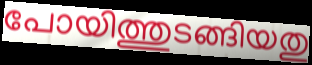
പോയിത്തുടങ്ങിയതു